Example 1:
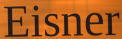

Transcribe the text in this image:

Eisner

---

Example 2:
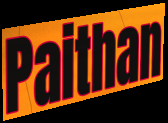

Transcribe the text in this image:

Paithan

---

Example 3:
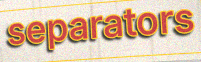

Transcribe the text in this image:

separators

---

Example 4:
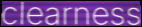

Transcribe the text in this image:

clearness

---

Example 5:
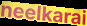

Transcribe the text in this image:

neelkarai